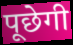
पूछेगी